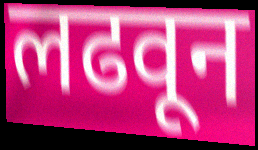
लढवून